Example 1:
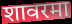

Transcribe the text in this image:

शावरमा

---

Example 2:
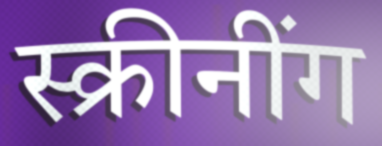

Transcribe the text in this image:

स्क्रीनींग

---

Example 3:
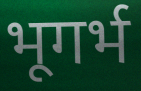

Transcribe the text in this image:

भूगर्भ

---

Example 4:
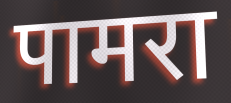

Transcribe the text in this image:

पामरा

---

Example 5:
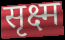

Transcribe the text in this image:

सृक्ष्म